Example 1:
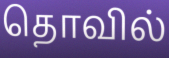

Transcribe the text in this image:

தொவில்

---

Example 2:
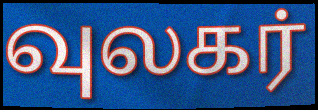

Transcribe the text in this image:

வுலகர்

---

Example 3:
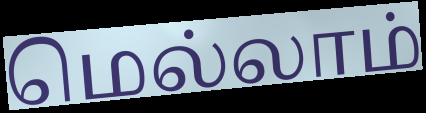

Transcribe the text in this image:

மெல்லாம்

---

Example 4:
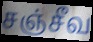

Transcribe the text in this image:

சஞ்சீவ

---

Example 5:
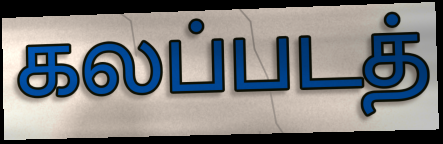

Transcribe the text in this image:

கலப்படத்